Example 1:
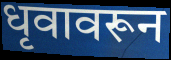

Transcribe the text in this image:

धृवावरून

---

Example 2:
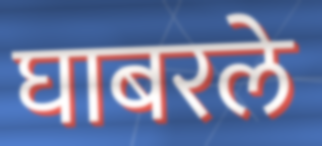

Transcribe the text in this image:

घाबरले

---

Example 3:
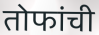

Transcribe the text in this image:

तोफांची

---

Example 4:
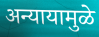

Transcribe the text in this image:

अन्यायामुळे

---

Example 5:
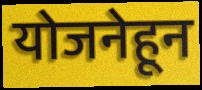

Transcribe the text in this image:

योजनेहून